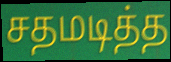
சதமடித்த